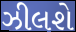
ઝીલશે